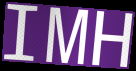
IMH